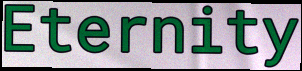
Eternity